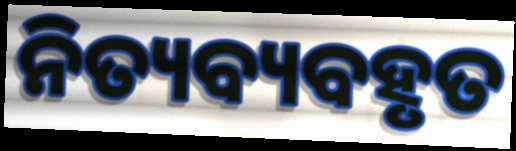
ନିତ୍ୟବ୍ୟବହୃତ